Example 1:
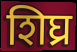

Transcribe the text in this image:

शिघ्र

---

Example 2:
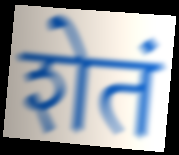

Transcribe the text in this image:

शेतं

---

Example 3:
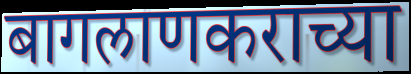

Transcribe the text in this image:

बागलाणकराच्या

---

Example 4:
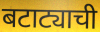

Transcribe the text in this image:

बटाट्याची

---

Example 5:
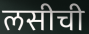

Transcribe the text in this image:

लसीची